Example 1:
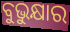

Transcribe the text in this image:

ବୁଭୁକ୍ଷାର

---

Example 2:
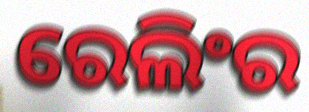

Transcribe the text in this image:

ରେଲିଂର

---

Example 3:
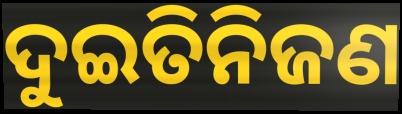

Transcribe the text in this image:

ଦୁଇତିନିଜଣ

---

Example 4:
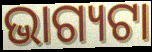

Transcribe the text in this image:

ଭାଗ୍ୟଟା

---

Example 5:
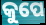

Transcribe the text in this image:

କୁପେ